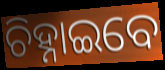
ଚିହ୍ନାଇବେ